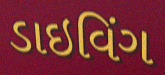
ડાઇવિંગ